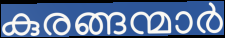
കുരങ്ങന്മാർ